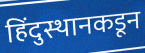
हिंदुस्थानकडून